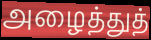
அழைத்துத்